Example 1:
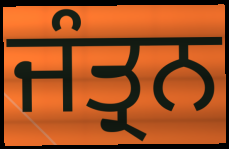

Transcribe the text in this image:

ਜੰਤ੍ਰਨ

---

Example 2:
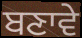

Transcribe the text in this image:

ਬਣਾਵੇ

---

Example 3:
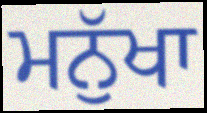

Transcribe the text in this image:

ਮਨੁੱਖਾ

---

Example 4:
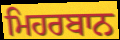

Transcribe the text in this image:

ਮਿਹਰਬਾਨ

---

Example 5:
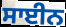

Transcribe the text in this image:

ਸਾਈਨ